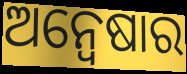
ଅନ୍ବେଷାର